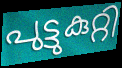
പുട്ടുകുറ്റി